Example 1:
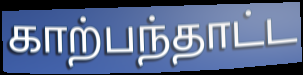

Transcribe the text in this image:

காற்பந்தாட்ட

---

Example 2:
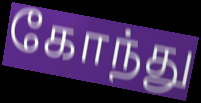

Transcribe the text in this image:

கோந்து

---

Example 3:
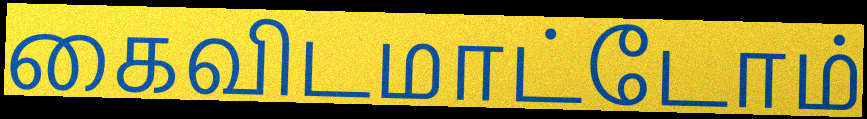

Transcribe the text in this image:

கைவிடமாட்டோம்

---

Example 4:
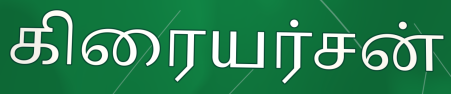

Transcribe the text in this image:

கிரையர்சன்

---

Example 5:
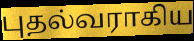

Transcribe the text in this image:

புதல்வராகிய